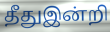
தீதுஇன்றி